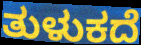
ತುಳುಕದೆ